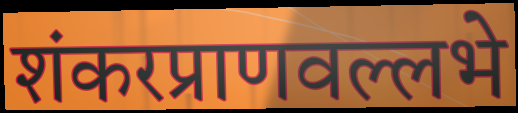
शंकरप्राणवल्लभे